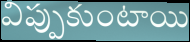
విప్పుకుంటాయి